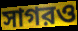
সাগরও